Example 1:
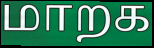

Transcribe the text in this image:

மாறக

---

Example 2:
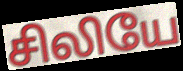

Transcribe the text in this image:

சிலியே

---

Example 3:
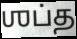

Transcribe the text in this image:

ஶப்த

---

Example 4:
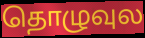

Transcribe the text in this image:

தொழுவுல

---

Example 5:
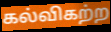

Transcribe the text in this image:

கல்விகற்ற